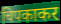
चिपकाकर